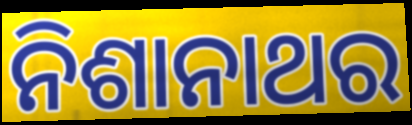
ନିଶାନାଥର